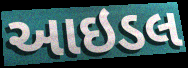
આઇડલ